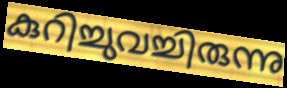
കുറിച്ചുവച്ചിരുന്നു